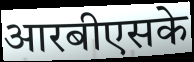
आरबीएसके